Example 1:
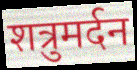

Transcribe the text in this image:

शत्रुमर्दन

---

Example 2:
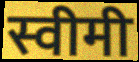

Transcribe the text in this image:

स्वीमी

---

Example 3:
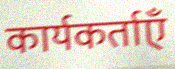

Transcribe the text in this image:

कार्यकर्ताएँ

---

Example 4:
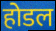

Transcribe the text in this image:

होडल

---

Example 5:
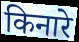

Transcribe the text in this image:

किनारे